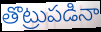
తొట్రుపడినా